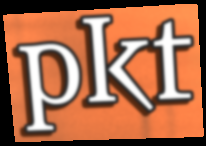
pkt